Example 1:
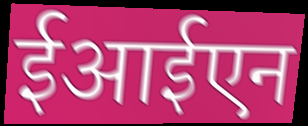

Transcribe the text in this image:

ईआईएन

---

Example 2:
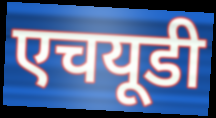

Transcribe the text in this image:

एचयूडी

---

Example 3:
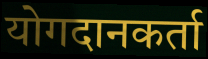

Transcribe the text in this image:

योगदानकर्ता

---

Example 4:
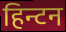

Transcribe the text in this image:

हिन्टन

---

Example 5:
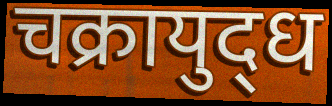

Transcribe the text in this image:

चक्रायुद्ध